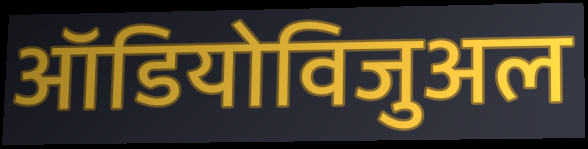
ऑडियोविजुअल